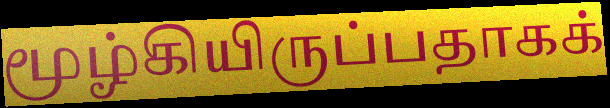
மூழ்கியிருப்பதாகக்